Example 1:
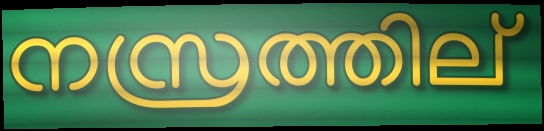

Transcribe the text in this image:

നസ്രത്തില്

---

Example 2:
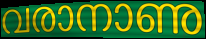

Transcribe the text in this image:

വരാനാണു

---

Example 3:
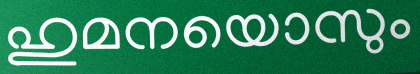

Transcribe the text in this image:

ഹുമനയൊസും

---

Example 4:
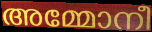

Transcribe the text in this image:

അമ്മോനീ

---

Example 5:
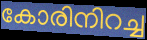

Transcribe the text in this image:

കോരിനിറച്ച